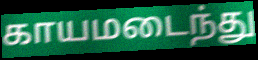
காயமடைந்து